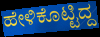
ಹೇಳಿಕೊಟ್ಟಿದ್ದ